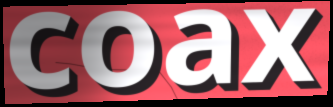
coax